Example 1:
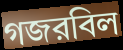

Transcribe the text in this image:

গজরবিল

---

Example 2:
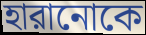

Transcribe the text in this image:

হারানোকে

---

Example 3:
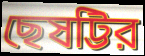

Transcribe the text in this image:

ছেষট্টির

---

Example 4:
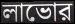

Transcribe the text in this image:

লাভোর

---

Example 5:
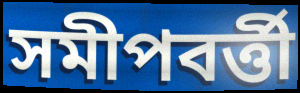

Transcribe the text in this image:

সমীপবর্ত্তী